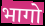
भागो